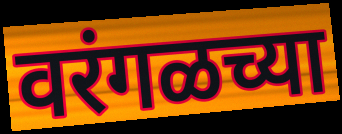
वरंगळच्या